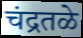
चंद्रतळे